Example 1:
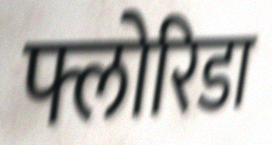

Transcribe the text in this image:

फ्लोरिडा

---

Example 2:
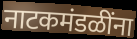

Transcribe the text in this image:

नाटकमंडळींना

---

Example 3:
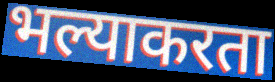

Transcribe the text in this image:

भल्याकरता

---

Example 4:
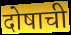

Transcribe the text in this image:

दोषाची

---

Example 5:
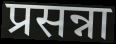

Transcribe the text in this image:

प्रसन्ना